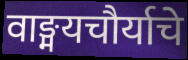
वाङ्मयचौर्याचे